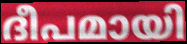
ദീപമായി